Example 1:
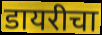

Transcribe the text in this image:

डायरीचा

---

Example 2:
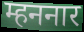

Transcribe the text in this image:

म्हननार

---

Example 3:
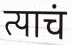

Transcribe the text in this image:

त्याचं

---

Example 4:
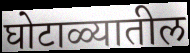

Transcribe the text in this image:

घोटाळ्यातील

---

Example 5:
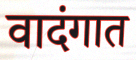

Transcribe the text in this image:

वादंगात